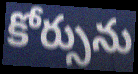
కోర్సును